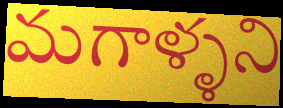
మగాళ్ళని